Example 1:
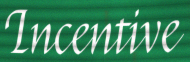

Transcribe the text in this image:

Incentive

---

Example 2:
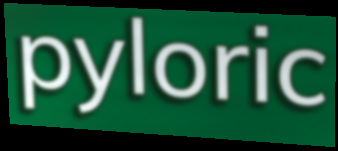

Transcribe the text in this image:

pyloric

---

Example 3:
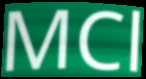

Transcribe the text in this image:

MCl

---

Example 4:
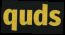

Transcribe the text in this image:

quds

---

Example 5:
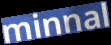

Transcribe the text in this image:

minnal